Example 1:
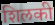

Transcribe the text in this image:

शिलकी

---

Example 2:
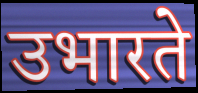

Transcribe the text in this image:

उभारते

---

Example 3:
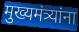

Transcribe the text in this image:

मुख्यमंत्र्यांना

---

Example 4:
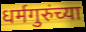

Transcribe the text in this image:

धर्मगुरुंच्या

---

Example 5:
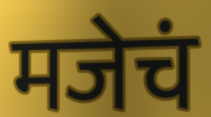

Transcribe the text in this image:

मजेचं